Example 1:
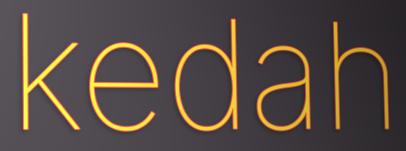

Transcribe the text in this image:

kedah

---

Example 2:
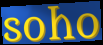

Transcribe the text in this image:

soho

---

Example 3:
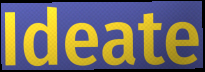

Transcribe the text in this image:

Ideate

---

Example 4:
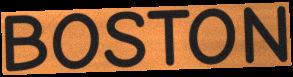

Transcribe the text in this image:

BOSTON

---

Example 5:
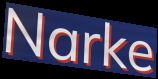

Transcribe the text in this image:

Narke